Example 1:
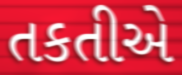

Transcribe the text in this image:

તકતીએ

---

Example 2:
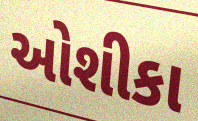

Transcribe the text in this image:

ઓશીકા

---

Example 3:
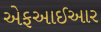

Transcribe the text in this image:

એફઆઈઆર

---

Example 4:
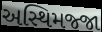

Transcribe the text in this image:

અસ્થિમજ્જા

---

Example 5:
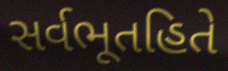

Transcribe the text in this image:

સર્વભૂતહિતે